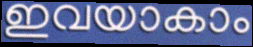
ഇവയാകാം